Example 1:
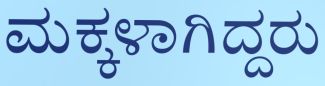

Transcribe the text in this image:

ಮಕ್ಕಳಾಗಿದ್ದರು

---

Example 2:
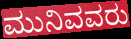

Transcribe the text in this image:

ಮುನಿವವರು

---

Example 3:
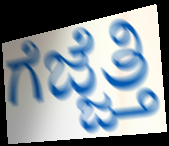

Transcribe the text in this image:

ಗೆಜ್ಜೆತ್ತಿ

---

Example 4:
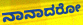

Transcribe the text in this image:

ನಾನಾದರೋ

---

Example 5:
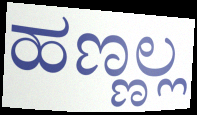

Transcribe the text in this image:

ಹಣ್ಣಲ್ಲ